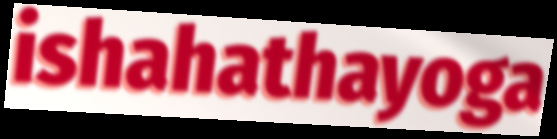
ishahathayoga